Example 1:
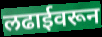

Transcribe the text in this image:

लढाईवरून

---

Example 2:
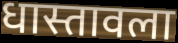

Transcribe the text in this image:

धास्तावला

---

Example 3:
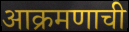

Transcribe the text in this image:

आक्रमणाची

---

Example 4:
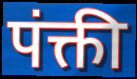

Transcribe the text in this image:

पंक्ती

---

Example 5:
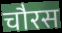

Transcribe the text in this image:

चौरस